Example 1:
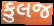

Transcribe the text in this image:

કુલજ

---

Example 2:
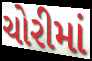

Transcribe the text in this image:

ચોરીમાં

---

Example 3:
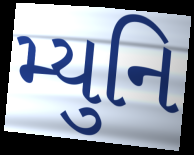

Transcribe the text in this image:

મ્યુનિ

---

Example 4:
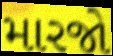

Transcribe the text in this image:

મારજો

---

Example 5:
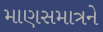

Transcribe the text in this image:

માણસમાત્રને